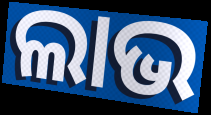
ଲାଭ